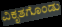
ವಿಕೃತಗೊಂಡು